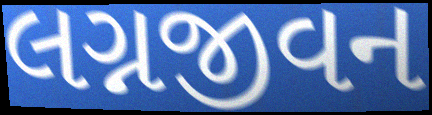
લગ્નજીવન